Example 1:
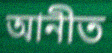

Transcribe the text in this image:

আনীত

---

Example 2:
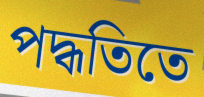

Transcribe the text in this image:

পদ্ধতিতে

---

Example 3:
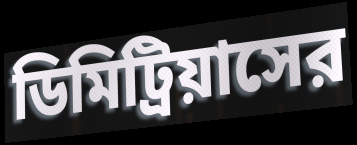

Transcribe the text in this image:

ডিমিট্রিয়াসের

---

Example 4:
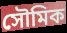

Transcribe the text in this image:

সৌমিক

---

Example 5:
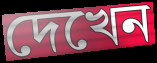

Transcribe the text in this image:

দেখেন